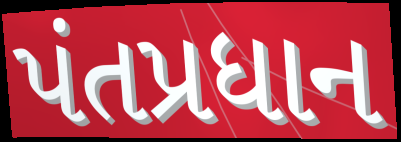
પંતપ્રધાન